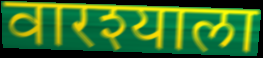
वारश्याला